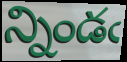
న్నిండఁ